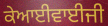
ਕੇਆਈਵਾਈਜੀ